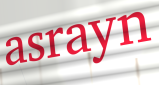
asrayn